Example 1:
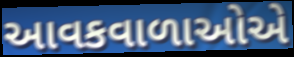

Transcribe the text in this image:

આવકવાળાઓએ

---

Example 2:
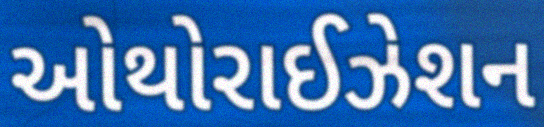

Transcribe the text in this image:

ઓથોરાઈઝેશન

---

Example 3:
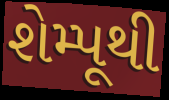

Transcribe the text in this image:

શેમ્પૂથી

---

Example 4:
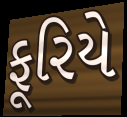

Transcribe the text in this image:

ફૂરિયે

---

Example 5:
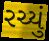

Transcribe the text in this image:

રચ્યું